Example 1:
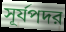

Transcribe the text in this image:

সূর্যপদর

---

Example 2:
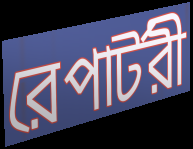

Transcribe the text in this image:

রেপার্টরী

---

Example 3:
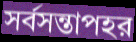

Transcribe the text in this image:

সর্বসন্তাপহর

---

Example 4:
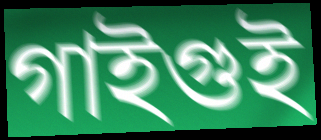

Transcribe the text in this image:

গাইগুই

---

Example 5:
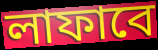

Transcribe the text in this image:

লাফাবে